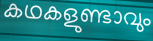
കഥകളുണ്ടാവും